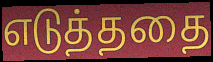
எடுத்ததை